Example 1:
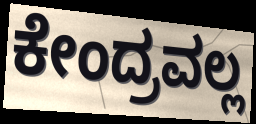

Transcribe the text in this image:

ಕೇಂದ್ರವಲ್ಲ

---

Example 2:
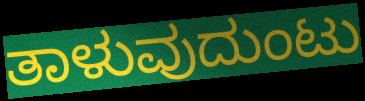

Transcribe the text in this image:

ತಾಳುವುದುಂಟು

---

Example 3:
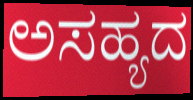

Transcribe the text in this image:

ಅಸಹ್ಯದ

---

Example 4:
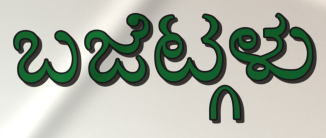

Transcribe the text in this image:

ಬಜೆಟ್ಗಳು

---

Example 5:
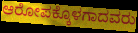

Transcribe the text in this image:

ಆರೋಪಕ್ಕೊಳಗಾದವರು